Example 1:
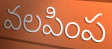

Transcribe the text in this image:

వలపింప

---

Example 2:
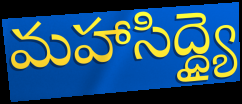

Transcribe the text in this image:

మహాసిద్ధ్యై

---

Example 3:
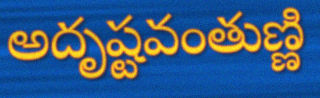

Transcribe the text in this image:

అదృష్టవంతుణ్ణి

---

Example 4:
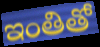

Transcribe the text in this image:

ఇంతితో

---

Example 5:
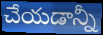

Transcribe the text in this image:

చేయడాన్నీ